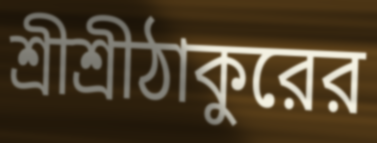
শ্রীশ্রীঠাকুরের